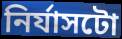
নিৰ্যাসটো